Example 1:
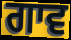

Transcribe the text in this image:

ਗਾਵ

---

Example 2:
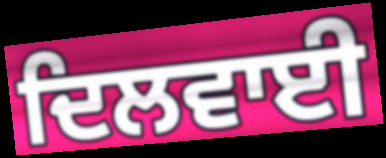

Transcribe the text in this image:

ਦਿਲਵਾਈ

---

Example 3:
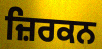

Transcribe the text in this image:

ਜ਼ਿਰਕਨ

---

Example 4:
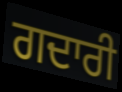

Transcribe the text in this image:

ਗਦਾਰੀ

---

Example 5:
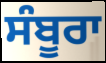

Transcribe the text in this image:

ਸੰਬੂਰਾ